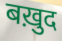
बख़ुद